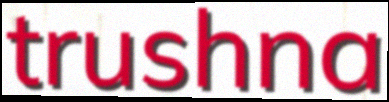
trushna